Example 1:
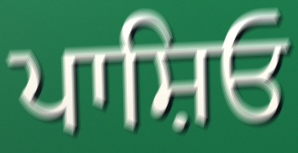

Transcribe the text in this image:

ਪਾਸ਼ਿਓ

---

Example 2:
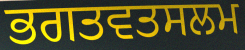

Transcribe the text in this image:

ਭਗਤਵਤਸਲਮ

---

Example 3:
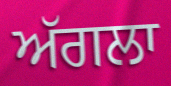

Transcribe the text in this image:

ਅੱਗਲਾ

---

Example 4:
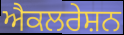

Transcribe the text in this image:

ਐਕਲਰੇਸ਼ਨ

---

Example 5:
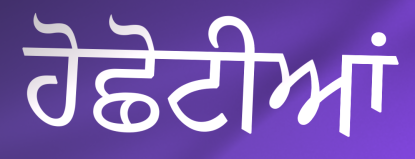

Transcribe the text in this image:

ਹੋਛੋਟੀਆਂ